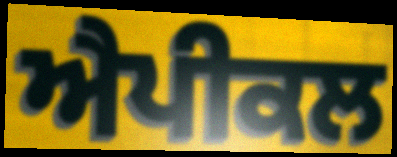
ਐਪੀਕਲ